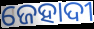
ଜେହାଦୀ